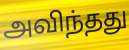
அவிந்தது